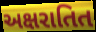
અક્ષરાતિત